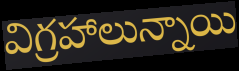
విగ్రహాలున్నాయి